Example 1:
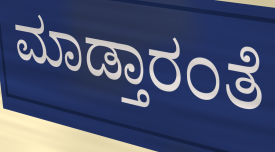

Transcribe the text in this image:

ಮಾಡ್ತಾರಂತೆ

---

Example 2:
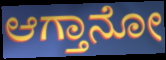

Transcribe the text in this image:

ಆಗ್ತಾನೋ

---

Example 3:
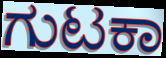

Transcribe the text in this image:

ಗುಟಕಾ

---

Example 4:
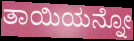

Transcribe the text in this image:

ತಾಯಿಯನ್ನೋ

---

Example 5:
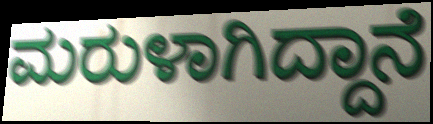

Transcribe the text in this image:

ಮರುಳಾಗಿದ್ದಾನೆ